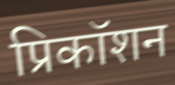
प्रिकॉशन